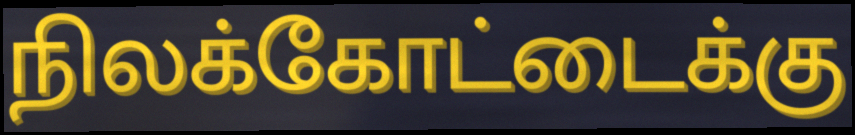
நிலக்கோட்டைக்கு